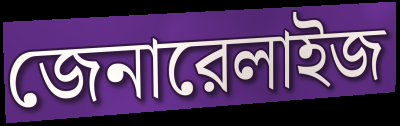
জেনারেলাইজ